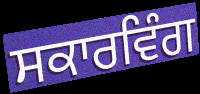
ਸਕਾਰਵਿੰਗ